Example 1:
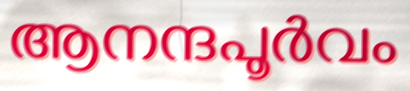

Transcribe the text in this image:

ആനന്ദപൂർവം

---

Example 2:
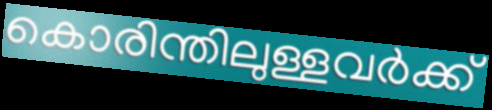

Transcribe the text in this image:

കൊരിന്തിലുള്ളവർക്ക്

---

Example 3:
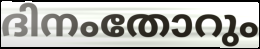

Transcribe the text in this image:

ദിനംതോറും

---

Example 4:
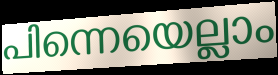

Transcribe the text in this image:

പിന്നെയെല്ലാം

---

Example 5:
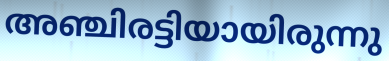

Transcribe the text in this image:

അഞ്ചിരട്ടിയായിരുന്നു